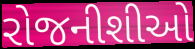
રોજનીશીઓ